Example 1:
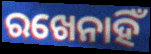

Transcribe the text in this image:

ରଖେନାହିଁ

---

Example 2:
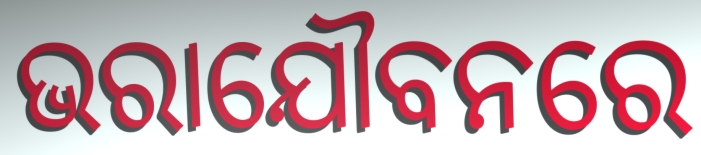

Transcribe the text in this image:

ଭରାଯୌବନରେ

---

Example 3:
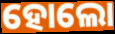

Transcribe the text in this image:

ହୋଲୋ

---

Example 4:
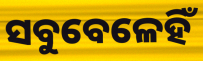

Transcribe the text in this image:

ସବୁବେଳେହିଁ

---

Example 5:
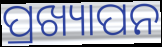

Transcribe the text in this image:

ପ୍ରଖ୍ୟାପନ